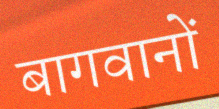
बागवानों